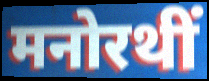
मनोरथीं